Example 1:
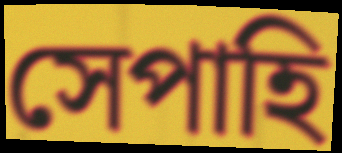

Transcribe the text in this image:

সেপাহি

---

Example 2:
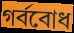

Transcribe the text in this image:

গর্ববোধ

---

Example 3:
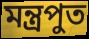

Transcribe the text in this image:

মন্ত্রপুত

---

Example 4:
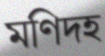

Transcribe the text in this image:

মণিদহ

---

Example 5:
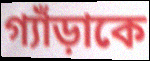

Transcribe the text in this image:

গ্যাঁড়াকে